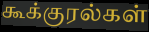
கூக்குரல்கள்